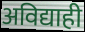
अविद्याही